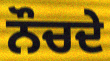
ਨੌਚਦੇ